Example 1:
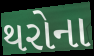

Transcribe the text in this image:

થરોના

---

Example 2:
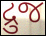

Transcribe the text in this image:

દ્રુજ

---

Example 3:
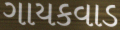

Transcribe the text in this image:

ગાયકવાડ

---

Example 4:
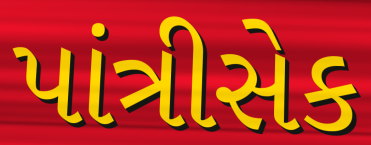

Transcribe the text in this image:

પાંત્રીસેક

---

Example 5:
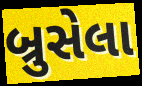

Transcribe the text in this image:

બ્રુસેલા